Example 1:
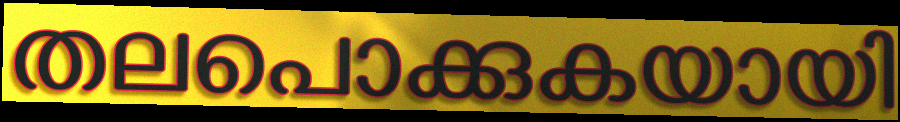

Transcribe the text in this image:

തലപൊക്കുകയായി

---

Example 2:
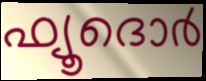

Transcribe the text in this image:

ഫ്യൂദൊർ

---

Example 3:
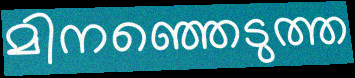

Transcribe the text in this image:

മിനഞ്ഞെടുത്ത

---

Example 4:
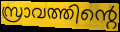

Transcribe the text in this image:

സ്രാവത്തിന്റെ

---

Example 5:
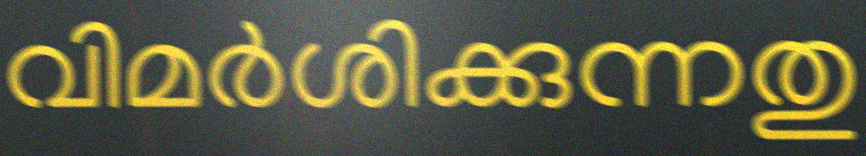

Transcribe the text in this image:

വിമർശിക്കുന്നതു